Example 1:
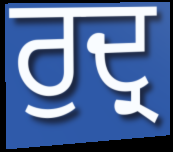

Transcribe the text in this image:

ਰੁਦ੍ਰ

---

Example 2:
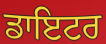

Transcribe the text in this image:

ਡਾਇਟਰ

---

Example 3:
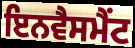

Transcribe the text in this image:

ਇਨਵੈਸਮੈਂਟ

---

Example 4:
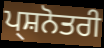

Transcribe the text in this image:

ਪ੍ਸ਼ਨੋਤਰੀ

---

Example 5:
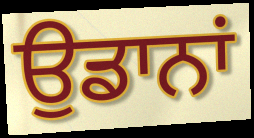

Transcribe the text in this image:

ਉਡਾਨਾਂ